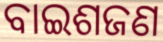
ବାଇଶଜଣ